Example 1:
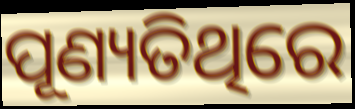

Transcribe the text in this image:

ପୂଣ୍ୟତିଥିରେ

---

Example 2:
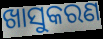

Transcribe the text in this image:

ଖାସୁକରଣ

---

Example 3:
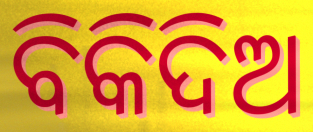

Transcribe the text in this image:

ବିକିଦିଅ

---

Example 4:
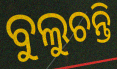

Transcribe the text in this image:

ବୁଲୁଚନ୍ତି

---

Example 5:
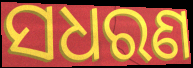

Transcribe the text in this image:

ସଧରଣ